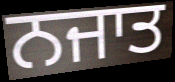
ਨਜਾਤ